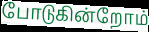
போடுகின்றோம்